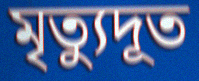
মৃত্যুদূত